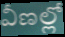
వీణల్లో